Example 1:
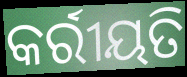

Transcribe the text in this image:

କର୍ରୀୟତି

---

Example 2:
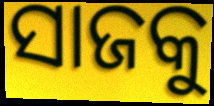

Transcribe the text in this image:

ସାଜକୁ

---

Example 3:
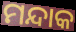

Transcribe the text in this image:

ମନ୍ଦାକ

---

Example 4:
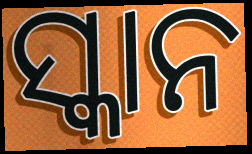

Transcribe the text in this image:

ସ୍କାନ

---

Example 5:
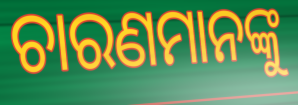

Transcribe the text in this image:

ଚାରଣମାନଙ୍କୁ